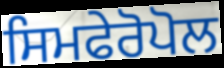
ਸਿਮਫੇਰੋਪੋਲ